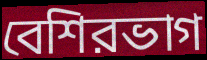
বেশিরভাগ